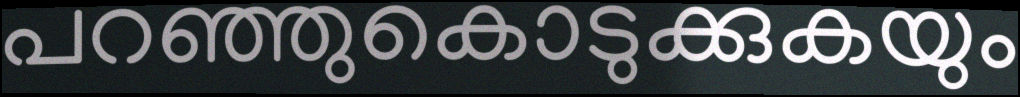
പറഞ്ഞുകൊടുക്കുകയും